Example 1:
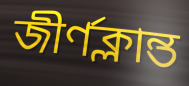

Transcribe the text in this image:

জীর্ণক্লান্ত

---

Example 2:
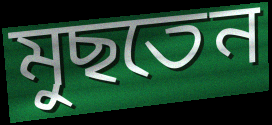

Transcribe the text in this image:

মুছতেন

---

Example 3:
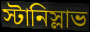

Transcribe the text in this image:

স্টানিস্লাভ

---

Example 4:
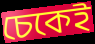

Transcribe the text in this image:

চেকেই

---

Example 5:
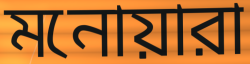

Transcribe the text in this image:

মনোয়ারা